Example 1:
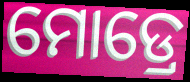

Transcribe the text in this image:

ମୋଡ୍ରେ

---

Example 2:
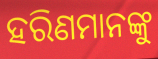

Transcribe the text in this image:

ହରିଣମାନଙ୍କୁ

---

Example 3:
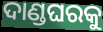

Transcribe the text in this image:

ଦାଣ୍ଡଘରକୁ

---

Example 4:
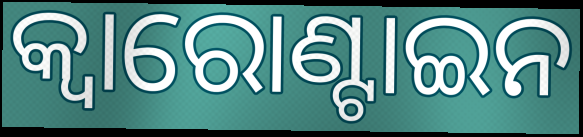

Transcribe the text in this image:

କ୍ୱାରୋଣ୍ଟାଇନ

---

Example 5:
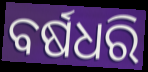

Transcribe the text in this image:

ବର୍ଷଧରି